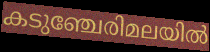
കടുഞ്ചേരിമലയിൽ